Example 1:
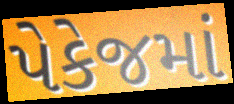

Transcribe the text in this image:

પેકેજમાં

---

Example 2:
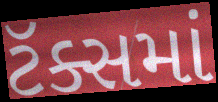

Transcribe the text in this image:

ટૅક્સમાં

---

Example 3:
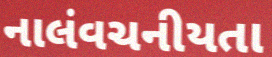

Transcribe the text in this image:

નાલંવચનીયતા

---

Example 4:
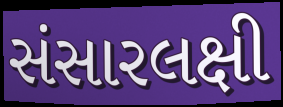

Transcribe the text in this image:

સંસારલક્ષી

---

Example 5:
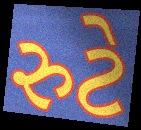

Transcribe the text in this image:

રુટે